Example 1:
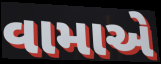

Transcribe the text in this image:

વામાએ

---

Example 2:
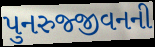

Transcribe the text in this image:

પુનરુજ્જીવનની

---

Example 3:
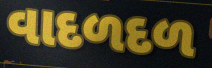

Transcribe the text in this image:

વાદળદળ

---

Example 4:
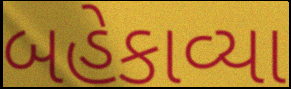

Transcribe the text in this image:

બહેકાવ્યા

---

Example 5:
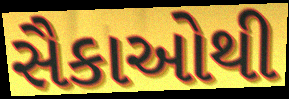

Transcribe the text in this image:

સૈકાઓથી